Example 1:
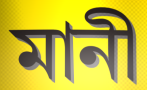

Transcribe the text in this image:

মানী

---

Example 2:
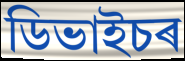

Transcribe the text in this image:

ডিভাইচৰ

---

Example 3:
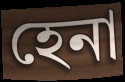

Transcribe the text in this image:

হেনা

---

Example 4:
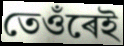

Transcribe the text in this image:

তেওঁৰেই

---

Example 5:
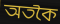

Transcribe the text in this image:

অতকৈ